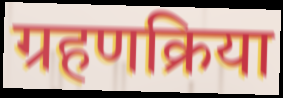
ग्रहणक्रिया